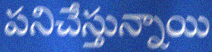
పనిచేస్తున్నాయి